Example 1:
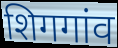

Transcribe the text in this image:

शिगगांव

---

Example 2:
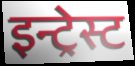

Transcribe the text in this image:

इन्ट्रेस्ट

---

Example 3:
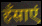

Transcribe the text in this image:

हँसाएं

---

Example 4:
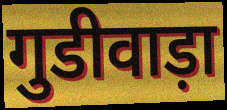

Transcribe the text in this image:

गुडीवाड़ा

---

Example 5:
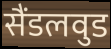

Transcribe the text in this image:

सैंडलवुड